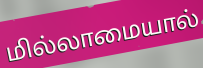
மில்லாமையால்